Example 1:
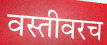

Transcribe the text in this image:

वस्तीवरच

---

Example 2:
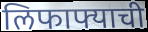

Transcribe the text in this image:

लिफाफ्याची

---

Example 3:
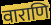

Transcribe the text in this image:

वाराणि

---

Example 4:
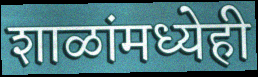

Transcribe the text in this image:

शाळांमध्येही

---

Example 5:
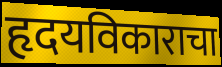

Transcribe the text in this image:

हृदयविकाराचा